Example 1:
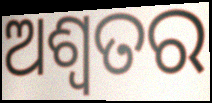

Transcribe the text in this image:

ଅଶ୍ୱତର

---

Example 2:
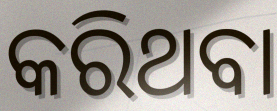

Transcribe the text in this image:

କରିଥବା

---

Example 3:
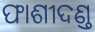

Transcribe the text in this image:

ଫାଶୀଦଣ୍ଡ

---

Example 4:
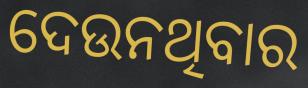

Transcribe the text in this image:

ଦେଉନଥିବାର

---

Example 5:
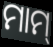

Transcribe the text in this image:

ମାମ୍